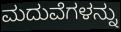
ಮದುವೆಗಳನ್ನು